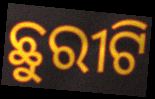
ଛୁରୀଟି